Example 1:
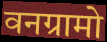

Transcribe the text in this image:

वनग्रामो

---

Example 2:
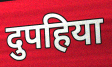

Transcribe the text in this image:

दुपहिया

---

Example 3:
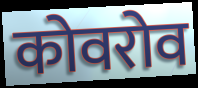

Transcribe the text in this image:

कोवरोव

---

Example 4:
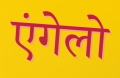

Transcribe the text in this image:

एंगेलो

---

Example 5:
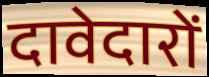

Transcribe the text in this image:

दावेदारों